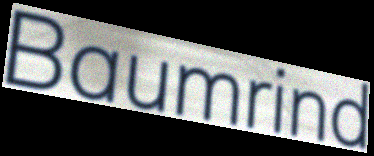
Baumrind